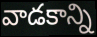
వాడకాన్ని